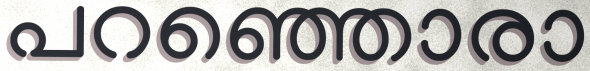
പറഞ്ഞൊരാ